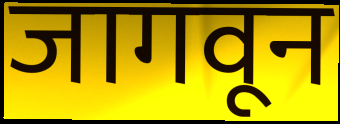
जागवून